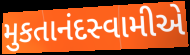
મુકતાનંદસ્વામીએ